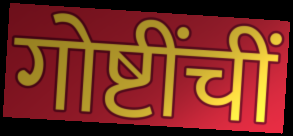
गोष्टींचीं